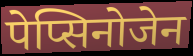
पेप्सिनोजेन